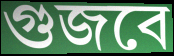
গুজবে